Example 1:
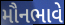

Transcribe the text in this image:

મૌનભાવે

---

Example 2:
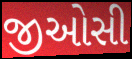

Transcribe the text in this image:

જીઓસી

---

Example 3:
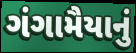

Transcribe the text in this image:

ગંગામૈયાનું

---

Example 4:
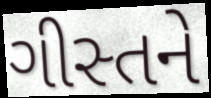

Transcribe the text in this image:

ગીસ્તને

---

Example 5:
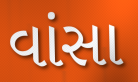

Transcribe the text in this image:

વાંસા